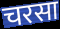
चरसा